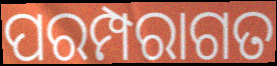
ପରମ୍ପରାଗତ